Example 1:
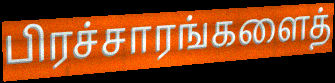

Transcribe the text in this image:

பிரச்சாரங்களைத்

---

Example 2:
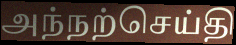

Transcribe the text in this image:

அந்நற்செய்தி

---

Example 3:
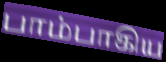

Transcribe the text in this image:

பாம்பாகிய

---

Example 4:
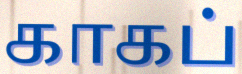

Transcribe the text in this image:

காகப்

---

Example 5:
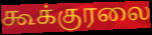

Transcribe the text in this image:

கூக்குரலை